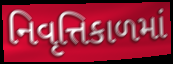
નિવૃત્તિકાળમાં